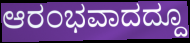
ಆರಂಭವಾದದ್ದೂ